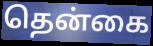
தென்கை